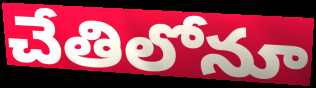
చేతిలోనూ